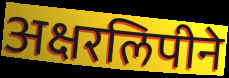
अक्षरलिपीने